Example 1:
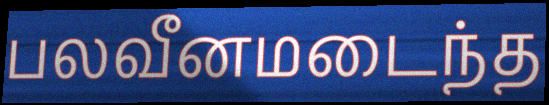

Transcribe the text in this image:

பலவீனமடைந்த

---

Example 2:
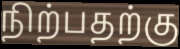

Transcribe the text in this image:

நிற்பதற்கு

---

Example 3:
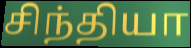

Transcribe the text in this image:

சிந்தியா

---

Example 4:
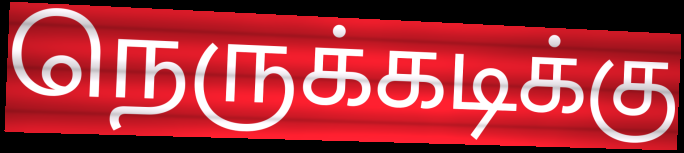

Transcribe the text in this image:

நெருக்கடிக்கு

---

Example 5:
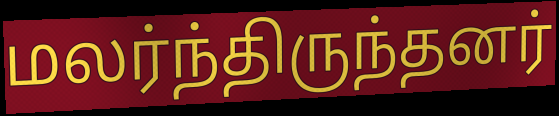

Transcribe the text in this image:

மலர்ந்திருந்தனர்